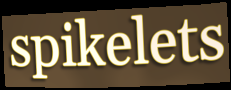
spikelets